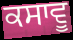
ਕਸਾਵੂ